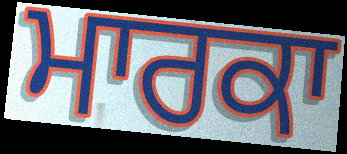
ਮਾਰਕਾ